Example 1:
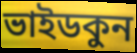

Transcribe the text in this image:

ভাইডকুন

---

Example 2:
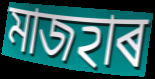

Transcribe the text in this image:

মাজহাৰ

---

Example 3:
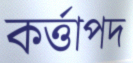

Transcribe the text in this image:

কৰ্ত্তাপদ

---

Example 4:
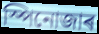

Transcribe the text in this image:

স্পিনোজাৰ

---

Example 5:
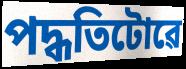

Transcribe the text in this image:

পদ্ধতিটোৱে